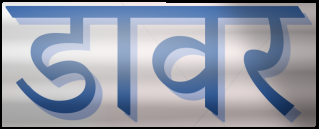
डावर